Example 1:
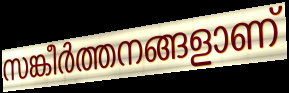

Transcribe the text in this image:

സങ്കീർത്തനങ്ങളാണ്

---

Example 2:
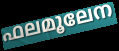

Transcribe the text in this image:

ഫലമൂലേന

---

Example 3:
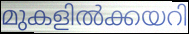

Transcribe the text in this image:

മുകളിൽക്കയറി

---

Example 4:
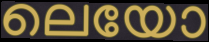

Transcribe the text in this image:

ലെയോ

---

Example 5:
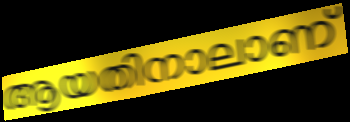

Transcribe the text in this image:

ആയതിനാലാണ്